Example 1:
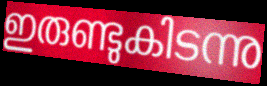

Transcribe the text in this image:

ഇരുണ്ടുകിടന്നു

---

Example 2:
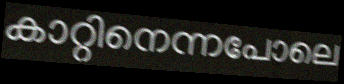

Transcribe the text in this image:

കാറ്റിനെന്നപോലെ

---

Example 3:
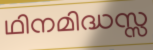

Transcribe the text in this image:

ഥിനമിദ്ധസ്സ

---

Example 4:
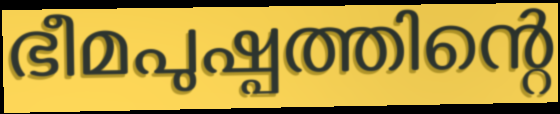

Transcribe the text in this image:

ഭീമപുഷ്പത്തിന്റെ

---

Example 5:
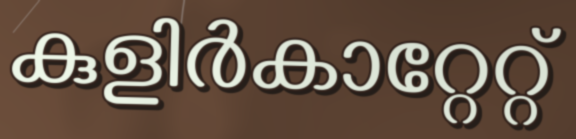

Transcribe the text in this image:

കുളിർകാറ്റേറ്റ്